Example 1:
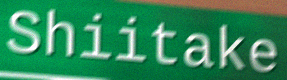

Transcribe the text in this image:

Shiitake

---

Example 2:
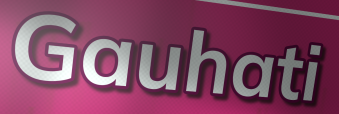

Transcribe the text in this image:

Gauhati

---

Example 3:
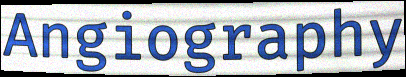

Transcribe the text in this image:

Angiography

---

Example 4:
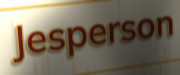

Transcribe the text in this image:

Jesperson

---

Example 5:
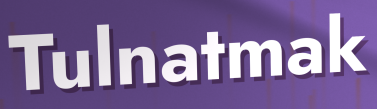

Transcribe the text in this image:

Tulnatmak